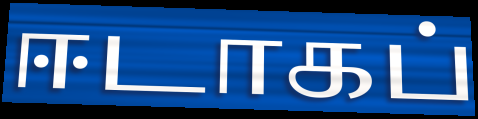
ஈடாகப்